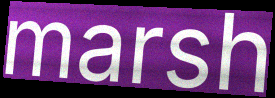
marsh